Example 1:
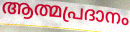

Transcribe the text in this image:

ആത്മപ്രദാനം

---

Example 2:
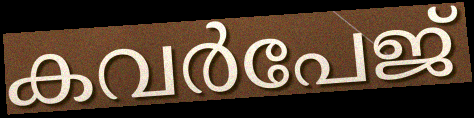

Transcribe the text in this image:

കവർപേജ്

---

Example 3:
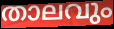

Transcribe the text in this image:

താലവും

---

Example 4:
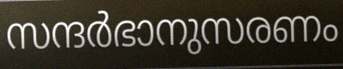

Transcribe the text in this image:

സന്ദർഭാനുസരണം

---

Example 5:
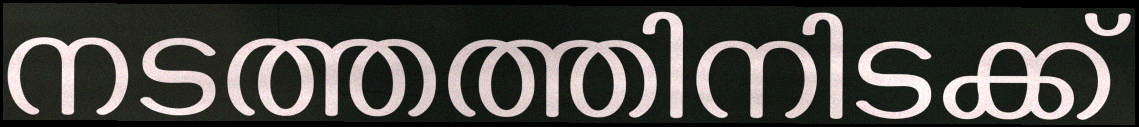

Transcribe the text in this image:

നടത്തത്തിനിടക്ക്